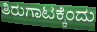
ತಿರುಗಾಟಕ್ಕೆಂದು